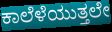
ಕಾಲೆಳೆಯುತ್ತಲೇ